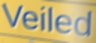
Veiled